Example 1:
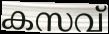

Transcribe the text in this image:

കസവ്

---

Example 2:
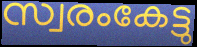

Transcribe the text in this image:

സ്വരംകേട്ടു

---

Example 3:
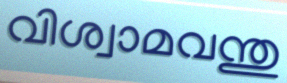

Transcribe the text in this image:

വിശ്വാമവന്തു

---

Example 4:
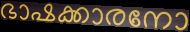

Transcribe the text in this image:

ഭാഷക്കാരനോ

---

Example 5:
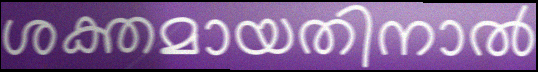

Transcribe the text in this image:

ശക്തമായതിനാൽ